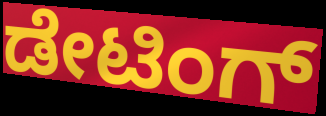
ಡೇಟಿಂಗ್